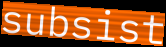
subsist